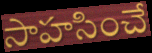
సాహసించే